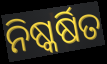
ନିଷ୍କର୍ଷିତ